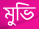
মুভি